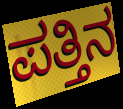
ಪತ್ತಿನ